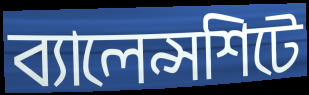
ব্যালেন্সশিটে